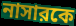
নাসারকে